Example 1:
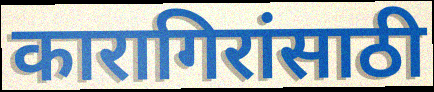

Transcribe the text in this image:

कारागिरांसाठी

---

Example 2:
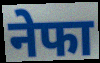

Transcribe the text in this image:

नेफा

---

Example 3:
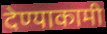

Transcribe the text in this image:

देण्याकामी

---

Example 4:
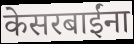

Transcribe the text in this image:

केसरबाईंना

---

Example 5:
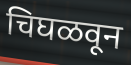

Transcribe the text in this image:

चिघळवून